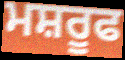
ਮਸ਼ਰੂਫ